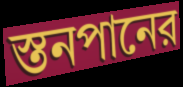
স্তনপানের